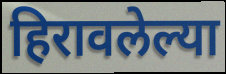
हिरावलेल्या